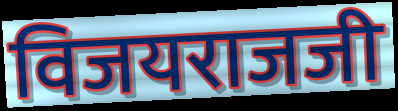
विजयराजजी